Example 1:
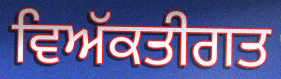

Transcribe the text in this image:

ਵਿਅੱਕਤੀਗਤ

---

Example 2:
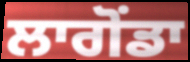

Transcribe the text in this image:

ਲਾਗੋਂਡਾ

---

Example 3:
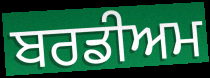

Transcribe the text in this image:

ਬਰਡੀਅਮ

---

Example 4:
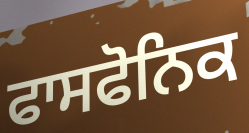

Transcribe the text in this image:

ਫਾਸਫੋਨਿਕ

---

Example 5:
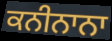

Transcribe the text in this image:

ਕਨੀਨਾਨਾ